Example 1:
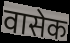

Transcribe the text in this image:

वासेक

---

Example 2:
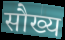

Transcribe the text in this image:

सौख्य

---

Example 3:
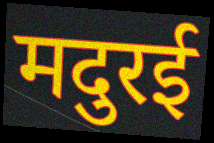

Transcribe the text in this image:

मदुरई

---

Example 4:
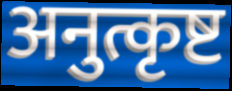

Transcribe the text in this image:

अनुत्कृष्ट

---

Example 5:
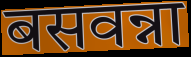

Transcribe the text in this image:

बसवन्ना